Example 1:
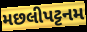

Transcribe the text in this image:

મછલીપટ્ટનમ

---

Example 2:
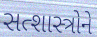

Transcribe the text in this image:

સત્શાસ્ત્રોને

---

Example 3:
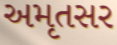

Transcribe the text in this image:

અમૃતસર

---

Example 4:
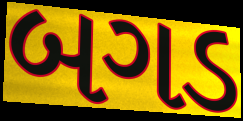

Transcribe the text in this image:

બગડ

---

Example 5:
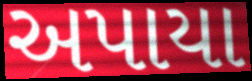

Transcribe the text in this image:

અપાયા